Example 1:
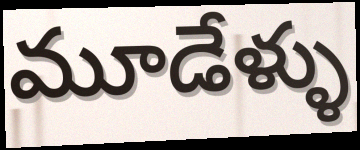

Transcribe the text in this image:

మూడేళ్ళు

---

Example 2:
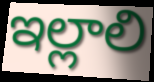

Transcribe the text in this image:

ఇల్లాలి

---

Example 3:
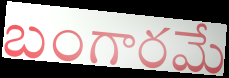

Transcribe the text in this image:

బంగారమే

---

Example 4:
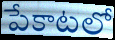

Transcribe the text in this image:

పేకాటలో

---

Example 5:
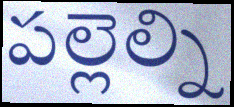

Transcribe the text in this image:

పల్లెల్ని